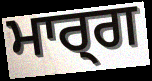
ਮਾਰ੍ਗ